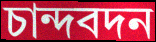
চান্দবদন